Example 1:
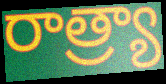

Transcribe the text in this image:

రాత్ర్యా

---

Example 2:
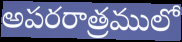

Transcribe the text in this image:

అపరరాత్రములో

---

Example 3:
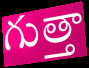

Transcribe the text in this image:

గుత్తా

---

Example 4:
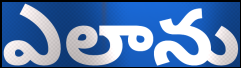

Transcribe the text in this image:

ఎలాను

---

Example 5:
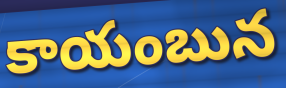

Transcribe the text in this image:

కాయంబున